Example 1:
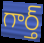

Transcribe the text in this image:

గార్త్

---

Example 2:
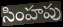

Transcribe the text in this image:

సింహపు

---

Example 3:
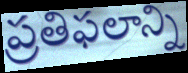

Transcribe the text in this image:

ప్రతిఫలాన్ని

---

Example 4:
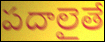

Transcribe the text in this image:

పదాలైతే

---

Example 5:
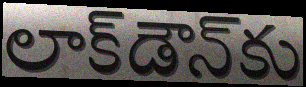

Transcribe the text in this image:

లాక్‌డౌన్‌కు